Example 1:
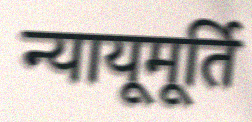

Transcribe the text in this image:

न्यायूमूर्ति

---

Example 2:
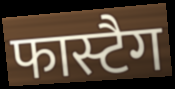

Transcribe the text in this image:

फास्‍टैग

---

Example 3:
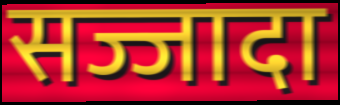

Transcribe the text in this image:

सज्जादा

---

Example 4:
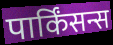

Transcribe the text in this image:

पार्किंसन्स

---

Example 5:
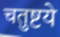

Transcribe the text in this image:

चतुष्टये